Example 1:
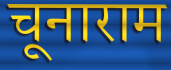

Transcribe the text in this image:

चूनाराम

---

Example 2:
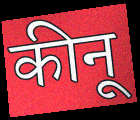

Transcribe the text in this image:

कीनू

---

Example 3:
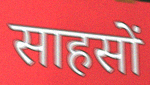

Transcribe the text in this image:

साहसों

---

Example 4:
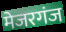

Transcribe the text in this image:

मेजरगंज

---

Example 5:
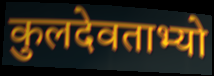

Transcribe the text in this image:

कुलदेवताभ्यो